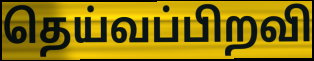
தெய்வப்பிறவி